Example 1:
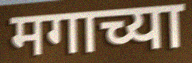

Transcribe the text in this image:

मगाच्या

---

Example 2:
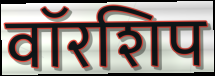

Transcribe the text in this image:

वॉरशिप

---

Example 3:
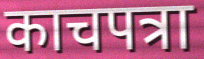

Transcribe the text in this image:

काचपत्रा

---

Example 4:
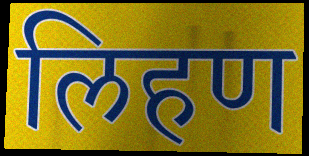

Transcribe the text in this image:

लिहण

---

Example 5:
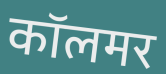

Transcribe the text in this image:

कॉलमर